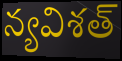
న్యవిశత్